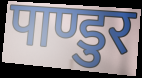
पाण्डुर